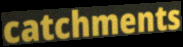
catchments